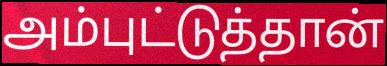
அம்புட்டுத்தான்